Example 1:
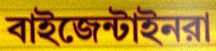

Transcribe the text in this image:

বাইজেন্টাইনরা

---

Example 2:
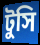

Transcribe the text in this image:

টুসি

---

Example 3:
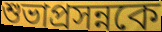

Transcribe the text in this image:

শুভাপ্রসন্নকে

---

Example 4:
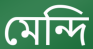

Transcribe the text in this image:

মেন্দি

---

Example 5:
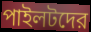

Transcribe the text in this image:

পাইলটদের